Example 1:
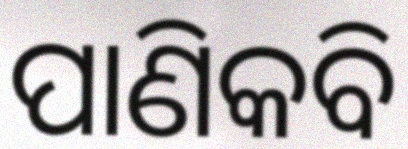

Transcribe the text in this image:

ପାଣିକବି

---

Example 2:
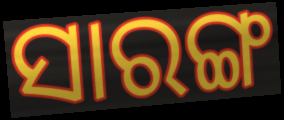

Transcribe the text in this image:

ସାରଙ୍ଗ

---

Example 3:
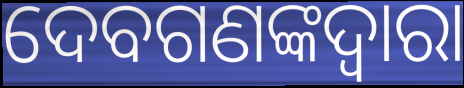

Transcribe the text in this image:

ଦେବଗଣଙ୍କଦ୍ୱାରା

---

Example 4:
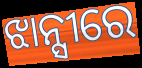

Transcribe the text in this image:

ଝାନ୍ସୀରେ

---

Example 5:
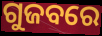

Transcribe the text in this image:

ଗୁଜବରେ